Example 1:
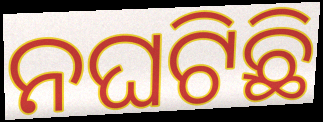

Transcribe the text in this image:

ନଘଟିଛି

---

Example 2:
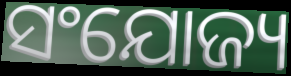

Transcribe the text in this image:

ସଂଯୋଜ୍ୟ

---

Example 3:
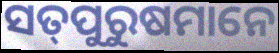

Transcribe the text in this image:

ସତ୍‌ପୁରୁଷମାନେ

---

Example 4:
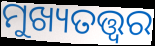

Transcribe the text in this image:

ମୁଖ୍ୟତତ୍ତ୍ୱର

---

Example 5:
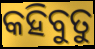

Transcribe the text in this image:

କହିବୁତୁ